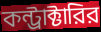
কন্ট্রাক্টারির